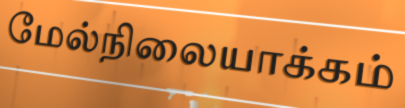
மேல்நிலையாக்கம்